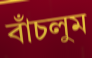
বাঁচলুম